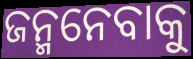
ଜନ୍ମନେବାକୁ